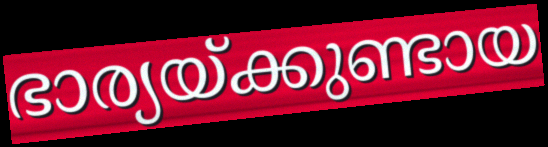
ഭാര്യയ്ക്കുണ്ടായ